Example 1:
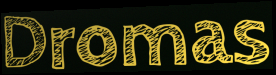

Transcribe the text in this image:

Dromas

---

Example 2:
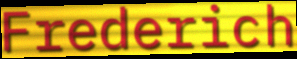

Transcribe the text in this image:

Frederich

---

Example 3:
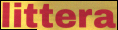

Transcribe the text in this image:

littera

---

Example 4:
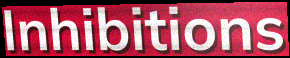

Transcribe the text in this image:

Inhibitions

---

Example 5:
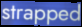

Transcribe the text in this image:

strapped